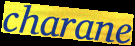
charane